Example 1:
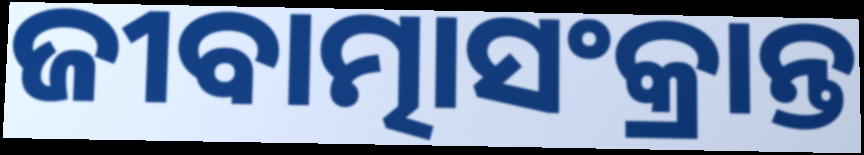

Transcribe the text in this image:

ଜୀବାତ୍ମାସଂକ୍ରାନ୍ତ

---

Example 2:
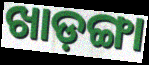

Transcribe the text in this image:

ଖାଡ଼ଙ୍ଗା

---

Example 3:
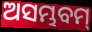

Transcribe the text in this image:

ଅସମ୍ଭବମ୍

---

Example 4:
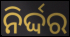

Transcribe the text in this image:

ନିର୍ଦ୍ଦର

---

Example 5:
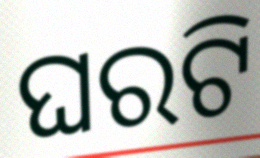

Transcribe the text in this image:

ଘରଟି